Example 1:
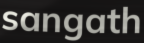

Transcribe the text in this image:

sangath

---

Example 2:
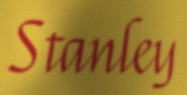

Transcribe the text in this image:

Stanley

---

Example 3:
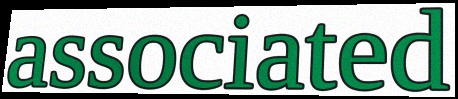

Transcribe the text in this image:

associated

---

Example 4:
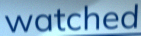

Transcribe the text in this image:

watched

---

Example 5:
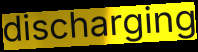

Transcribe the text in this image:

discharging